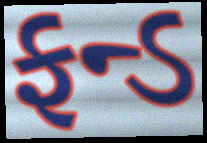
ફન્ડ